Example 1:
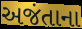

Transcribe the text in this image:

અજંતાના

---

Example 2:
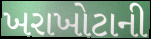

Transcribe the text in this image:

ખરાખોટાની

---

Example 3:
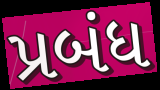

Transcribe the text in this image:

પ્રબંધ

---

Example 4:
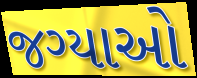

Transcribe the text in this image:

જગ્યાઓ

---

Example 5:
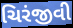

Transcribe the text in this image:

ચિરંજીવી